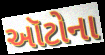
ઑટોના